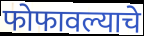
फोफावल्याचे